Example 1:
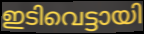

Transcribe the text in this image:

ഇടിവെട്ടായി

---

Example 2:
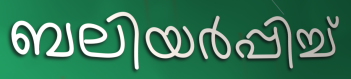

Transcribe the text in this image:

ബലിയർപ്പിച്ച്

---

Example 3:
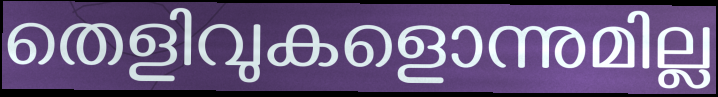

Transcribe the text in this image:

തെളിവുകളൊന്നുമില്ല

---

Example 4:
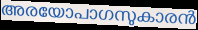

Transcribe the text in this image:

അരയോപാഗസുകാരൻ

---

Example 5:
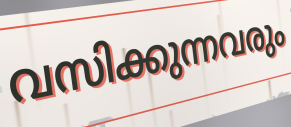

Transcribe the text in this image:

വസിക്കുന്നവരും